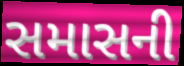
સમાસની